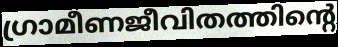
ഗ്രാമീണജീവിതത്തിന്റെ